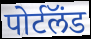
पोर्टलॅंड